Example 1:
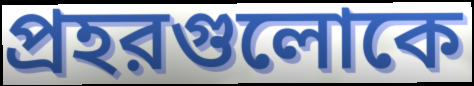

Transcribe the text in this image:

প্রহরগুলোকে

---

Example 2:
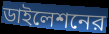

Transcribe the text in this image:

ডাইলেশনের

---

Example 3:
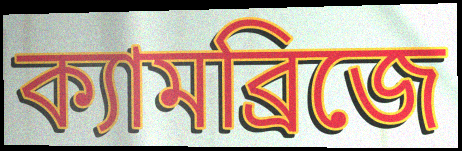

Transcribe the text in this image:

ক্যামব্রিজে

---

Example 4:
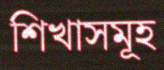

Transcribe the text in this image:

শিখাসমূহ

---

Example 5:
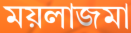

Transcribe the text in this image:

ময়লাজমা